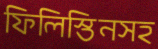
ফিলিস্তিনসহ